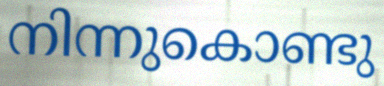
നിന്നുകൊണ്ടു